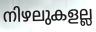
നിഴലുകളല്ല